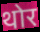
थोर